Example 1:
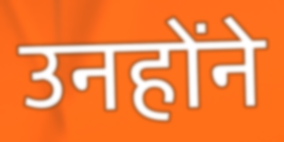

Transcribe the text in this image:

उनहोंने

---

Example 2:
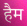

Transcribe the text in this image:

हैम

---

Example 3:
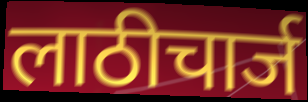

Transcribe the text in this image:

लाठीचार्ज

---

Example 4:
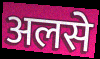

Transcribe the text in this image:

अलसे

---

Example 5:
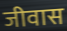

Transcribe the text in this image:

जीवास